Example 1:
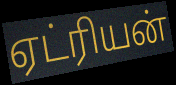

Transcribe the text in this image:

ஏட்ரியன்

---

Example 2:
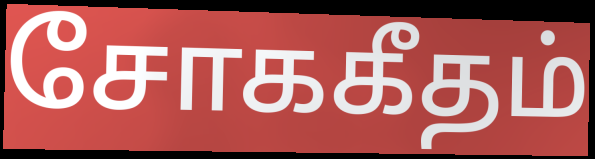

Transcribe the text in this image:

சோககீதம்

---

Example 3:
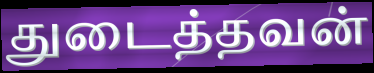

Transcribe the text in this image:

துடைத்தவன்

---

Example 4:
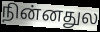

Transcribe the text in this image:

நின்னதுல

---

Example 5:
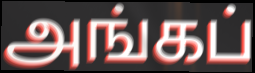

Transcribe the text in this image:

அங்கப்